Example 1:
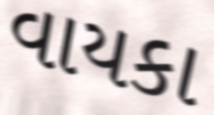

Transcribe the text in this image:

વાયકા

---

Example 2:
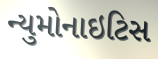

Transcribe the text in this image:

ન્યુમોનાઇટિસ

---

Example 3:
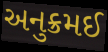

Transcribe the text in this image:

અનુક્રમઈ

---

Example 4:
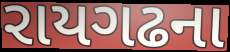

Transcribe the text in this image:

રાયગઢના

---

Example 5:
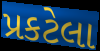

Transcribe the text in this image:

પ્રકટેલા